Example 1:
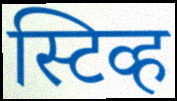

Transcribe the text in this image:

स्टिव्ह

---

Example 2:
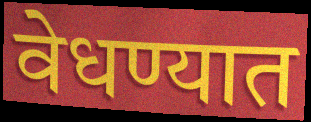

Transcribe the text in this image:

वेधण्यात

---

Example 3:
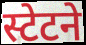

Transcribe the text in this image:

स्टेटने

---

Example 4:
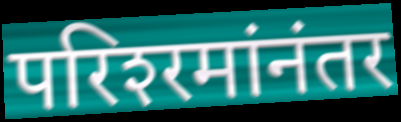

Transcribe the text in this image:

परिश्रमांनंतर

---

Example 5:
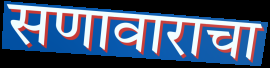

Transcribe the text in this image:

सणावाराचा